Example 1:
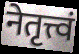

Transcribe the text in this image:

नेतृत्त्वं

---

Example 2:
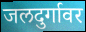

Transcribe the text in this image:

जलदुर्गावर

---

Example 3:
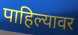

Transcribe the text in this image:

पाहिल्यावर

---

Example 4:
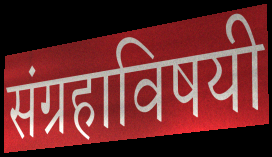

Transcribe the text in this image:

संग्रहाविषयी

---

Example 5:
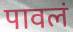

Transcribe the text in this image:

पावलं